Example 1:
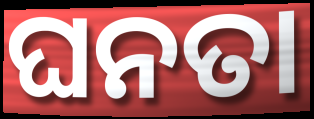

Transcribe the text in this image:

ଘନତା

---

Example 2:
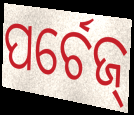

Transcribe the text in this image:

ପର୍ଚେଜ୍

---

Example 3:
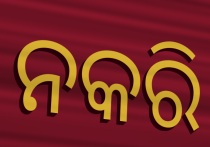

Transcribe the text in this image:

ନକରି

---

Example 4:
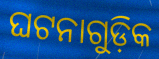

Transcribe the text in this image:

ଘଟନାଗୁଡ଼ିକ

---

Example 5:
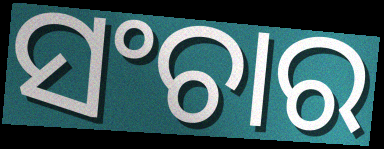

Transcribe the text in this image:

ସଂଚାର